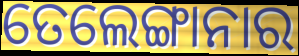
ତେଲେଙ୍ଗାନାର